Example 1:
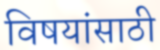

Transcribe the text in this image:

विषयांसाठी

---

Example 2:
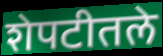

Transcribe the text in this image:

शेपटीतले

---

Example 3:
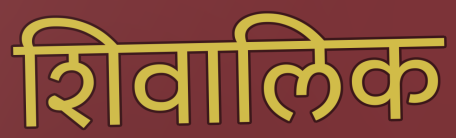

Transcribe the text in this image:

शिवालिक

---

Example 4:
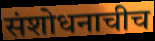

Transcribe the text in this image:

संशोधनाचीच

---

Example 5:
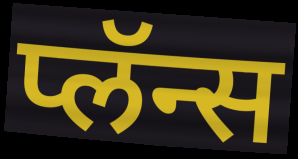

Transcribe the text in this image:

प्लॅन्स